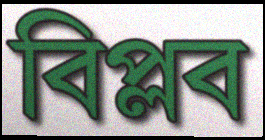
বিপ্লব